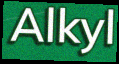
Alkyl